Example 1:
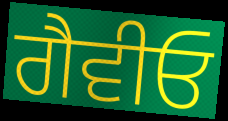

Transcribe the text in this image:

ਗੈਵੀਓ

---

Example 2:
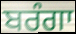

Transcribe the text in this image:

ਬਰੰਗਾ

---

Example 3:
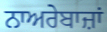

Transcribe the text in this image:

ਨਾਅਰੇਬਾਜ਼ਾਂ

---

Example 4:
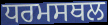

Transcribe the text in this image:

ਧਰਮਸਥਲ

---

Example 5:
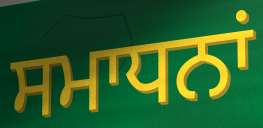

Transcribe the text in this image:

ਸਮਾਧਨਾਂ